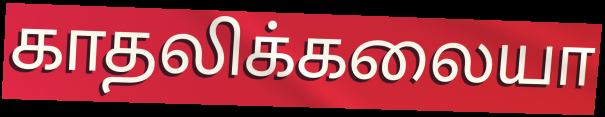
காதலிக்கலையா